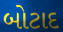
બોટાદ